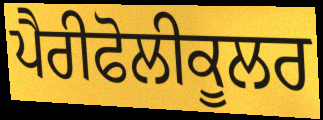
ਪੈਰੀਫੋਲੀਕੂਲਰ